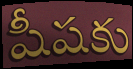
షీషకు